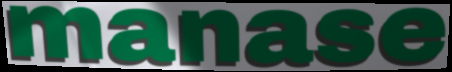
manase